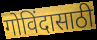
गोविंदासाठी